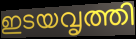
ഇടയവൃത്തി